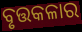
ବୃତ୍ତକଳାର